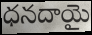
ధనదాయై